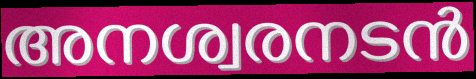
അനശ്വരനടൻ